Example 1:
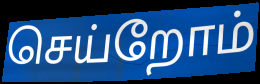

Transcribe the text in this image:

செய்றோம்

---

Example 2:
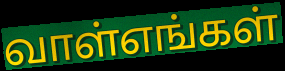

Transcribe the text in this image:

வாள்எங்கள்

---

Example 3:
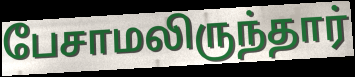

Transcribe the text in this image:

பேசாமலிருந்தார்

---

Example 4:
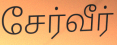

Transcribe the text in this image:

சேர்வீர்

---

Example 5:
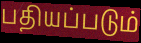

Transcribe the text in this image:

பதியப்படும்